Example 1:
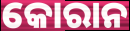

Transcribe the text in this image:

କୋରାନ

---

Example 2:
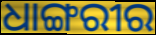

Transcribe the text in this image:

ଧାଙ୍ଗରୀର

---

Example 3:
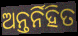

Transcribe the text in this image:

ଅନ୍ତର୍ନିହିତ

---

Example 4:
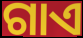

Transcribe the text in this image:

ଗାଏ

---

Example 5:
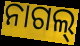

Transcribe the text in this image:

ନାଗଲ୍